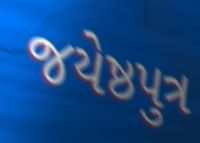
જયેષ્ઠપુત્ર